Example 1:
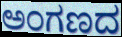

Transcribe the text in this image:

ಅಂಗಣದ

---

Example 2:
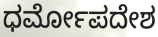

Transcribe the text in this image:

ಧರ್ಮೋಪದೇಶ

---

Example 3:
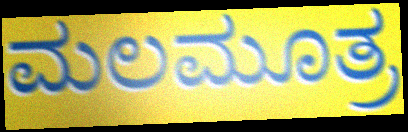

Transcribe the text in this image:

ಮಲಮೂತ್ರ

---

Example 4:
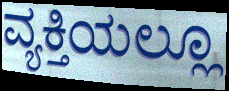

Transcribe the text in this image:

ವ್ಯಕ್ತಿಯಲ್ಲೂ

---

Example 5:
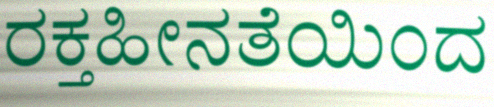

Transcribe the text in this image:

ರಕ್ತಹೀನತೆಯಿಂದ